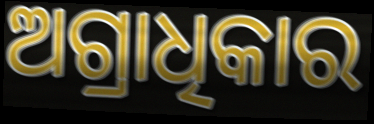
ଅଗ୍ରାଧିକାର